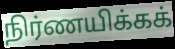
நிர்ணயிக்கக்